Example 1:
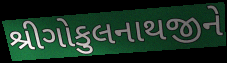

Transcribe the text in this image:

શ્રીગોકુલનાથજીને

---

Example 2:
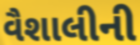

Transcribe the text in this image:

વૈશાલીની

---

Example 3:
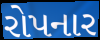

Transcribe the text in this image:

રોપનાર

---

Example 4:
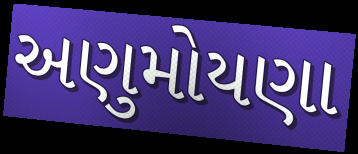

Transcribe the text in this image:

અણુમોયણા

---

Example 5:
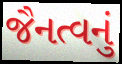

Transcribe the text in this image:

જૈનત્વનું